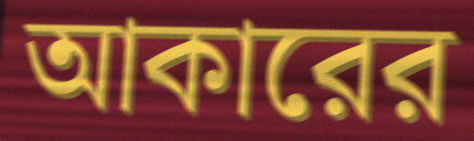
আকারের